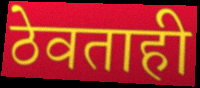
ठेवताही